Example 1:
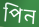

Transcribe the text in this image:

পিন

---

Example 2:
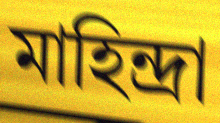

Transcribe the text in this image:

মাহিন্দ্রা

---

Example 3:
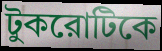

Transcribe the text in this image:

টুকরোটিকে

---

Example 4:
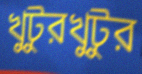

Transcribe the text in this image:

খুটুরখুটুর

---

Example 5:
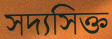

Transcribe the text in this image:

সদ্যসিক্ত